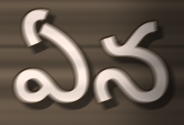
ఏన